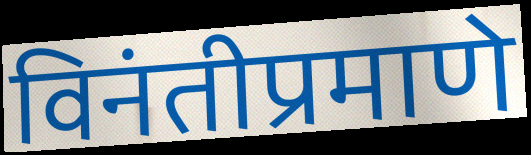
विनंतीप्रमाणे